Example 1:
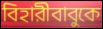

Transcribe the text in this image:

বিহারীবাবুকে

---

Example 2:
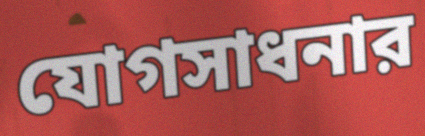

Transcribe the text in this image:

যোগসাধনার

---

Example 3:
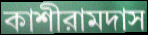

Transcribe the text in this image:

কাশীরামদাস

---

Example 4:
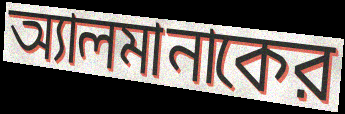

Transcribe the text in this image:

অ্যালমানাকের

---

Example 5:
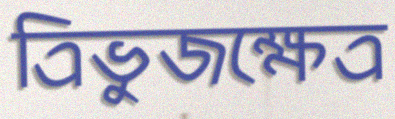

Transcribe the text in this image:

ত্রিভুজক্ষেত্র